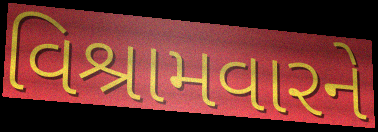
વિશ્રામવારને